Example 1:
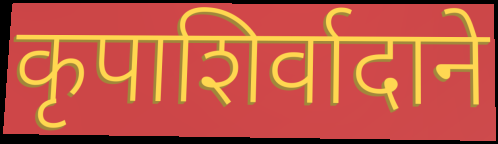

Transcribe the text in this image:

कृपाशिर्वादाने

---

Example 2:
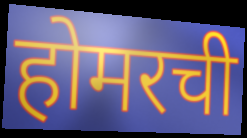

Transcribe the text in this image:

होमरची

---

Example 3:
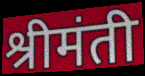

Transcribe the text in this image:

श्रीमंती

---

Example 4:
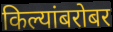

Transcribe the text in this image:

किल्यांबरोबर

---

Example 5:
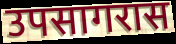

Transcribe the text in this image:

उपसागरास